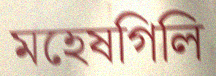
মহেষগিলি